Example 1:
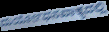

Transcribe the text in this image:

ದುರ್ಯೋಧನವಾಕ್ಯದಲ್ಲಿ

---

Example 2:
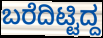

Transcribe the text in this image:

ಬರೆದಿಟ್ಟಿದ್ದ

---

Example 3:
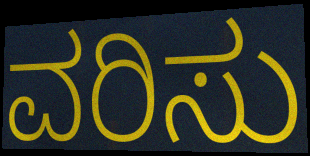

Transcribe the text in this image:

ವರಿಸು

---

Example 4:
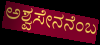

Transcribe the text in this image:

ಅಶ್ವಸೇನನೆಂಬ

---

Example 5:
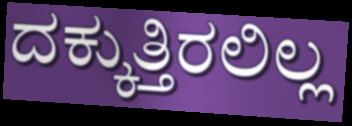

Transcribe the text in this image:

ದಕ್ಕುತ್ತಿರಲಿಲ್ಲ